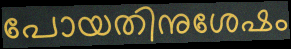
പോയതിനുശേഷം